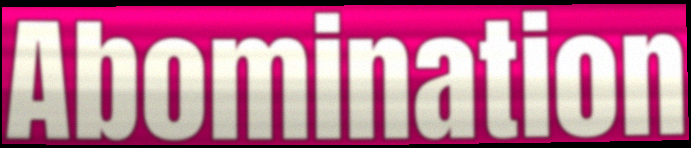
Abomination